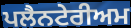
ਪਲੈਨਟੇਰੀਅਮ